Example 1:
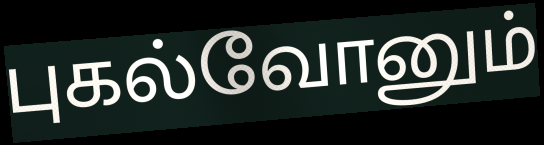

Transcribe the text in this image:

புகல்வோனும்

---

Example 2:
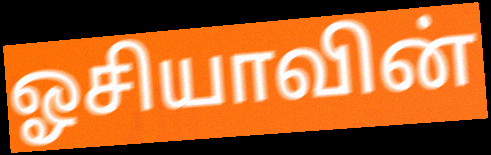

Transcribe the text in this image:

ஓசியாவின்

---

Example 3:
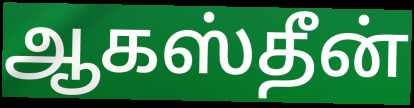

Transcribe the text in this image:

ஆகஸ்தீன்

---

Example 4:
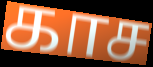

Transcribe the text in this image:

காச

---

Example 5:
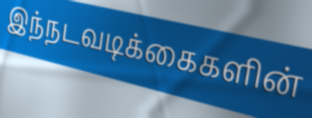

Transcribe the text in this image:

இந்நடவடிக்கைகளின்